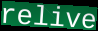
relive